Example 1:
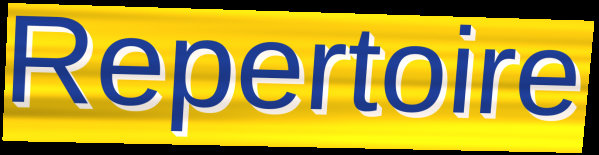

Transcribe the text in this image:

Repertoire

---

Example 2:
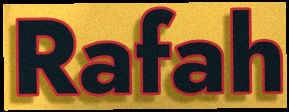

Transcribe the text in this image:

Rafah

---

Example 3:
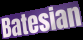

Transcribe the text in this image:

Batesian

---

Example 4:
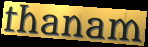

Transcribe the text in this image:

thanam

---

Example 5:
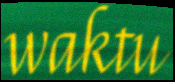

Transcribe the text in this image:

waktu